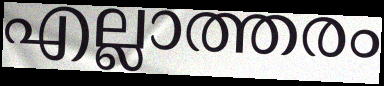
എല്ലാത്തരം